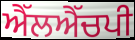
ਐੱਲਐੱਚਪੀ